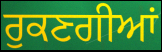
ਰੁਕਣਗੀਆਂ